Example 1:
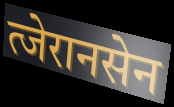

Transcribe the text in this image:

त्जेरानसेन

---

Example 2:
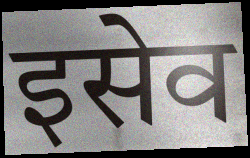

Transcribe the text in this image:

इसेव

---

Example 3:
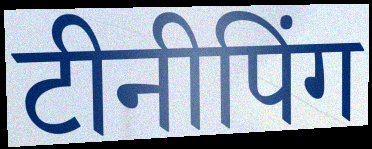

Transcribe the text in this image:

टीनीपिंग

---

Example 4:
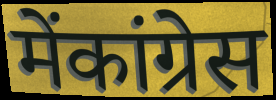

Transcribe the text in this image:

मेंकांग्रेस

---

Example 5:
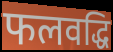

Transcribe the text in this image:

फलवद्धि